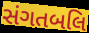
સંગતબલિ